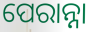
ପେରାନ୍ନା